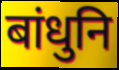
बांधुनि